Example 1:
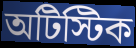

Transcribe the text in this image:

অটিস্টিক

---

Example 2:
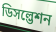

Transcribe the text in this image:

ডিসল্ভেশন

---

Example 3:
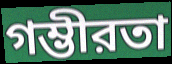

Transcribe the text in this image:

গম্ভীরতা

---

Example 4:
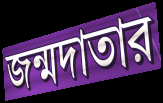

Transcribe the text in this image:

জন্মদাতার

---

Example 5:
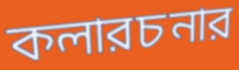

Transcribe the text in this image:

কলারচনার